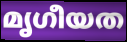
മൃഗീയത